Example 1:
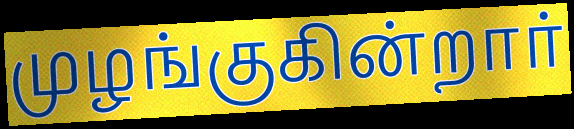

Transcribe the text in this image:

முழங்குகின்றார்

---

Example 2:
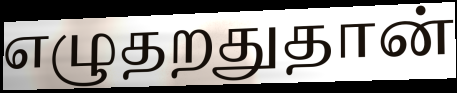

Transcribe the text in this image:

எழுதறதுதான்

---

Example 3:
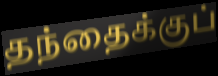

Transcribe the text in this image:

தந்தைக்குப்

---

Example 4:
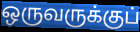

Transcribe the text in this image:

ஒருவருக்குப்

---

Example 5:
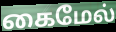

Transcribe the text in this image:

கைமேல்